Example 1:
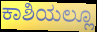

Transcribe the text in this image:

ಕಾಶಿಯಲ್ಲೂ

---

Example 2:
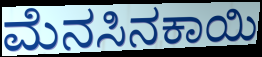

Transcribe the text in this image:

ಮೆನಸಿನಕಾಯಿ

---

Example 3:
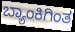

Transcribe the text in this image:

ಬ್ಯಾಂಕಿಗಿಂತ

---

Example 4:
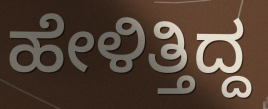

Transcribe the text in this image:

ಹೇಳಿತ್ತಿದ್ದ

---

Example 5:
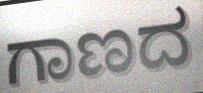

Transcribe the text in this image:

ಗಾಣದ